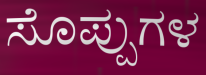
ಸೊಪ್ಪುಗಳ